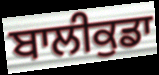
ਬਾਲੀਕੁਡਾ